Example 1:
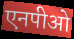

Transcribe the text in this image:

एनपीओ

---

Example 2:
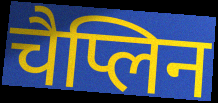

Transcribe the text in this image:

चैप्लिन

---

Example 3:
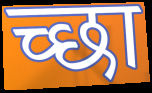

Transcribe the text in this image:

च्छा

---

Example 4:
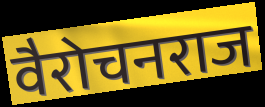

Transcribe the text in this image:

वैरोचनराज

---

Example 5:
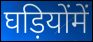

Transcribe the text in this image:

घड़ियोंमें